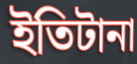
ইতিটানা